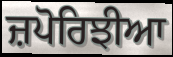
ਜ਼ਪੋਰਿਝੀਆ